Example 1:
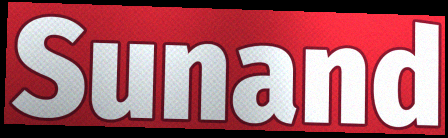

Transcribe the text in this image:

Sunand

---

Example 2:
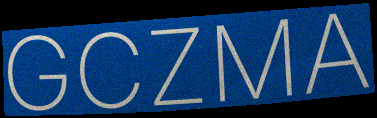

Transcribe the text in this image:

GCZMA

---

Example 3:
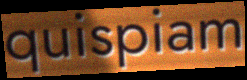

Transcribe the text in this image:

quispiam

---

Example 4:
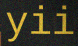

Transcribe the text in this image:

yii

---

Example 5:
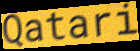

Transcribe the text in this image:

Qatari